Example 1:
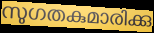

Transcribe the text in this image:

സുഗതകുമാരിക്കു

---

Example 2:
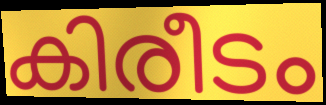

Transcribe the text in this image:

കിരീടം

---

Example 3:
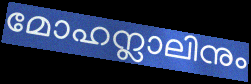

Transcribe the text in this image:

മോഹന്ലാലിനും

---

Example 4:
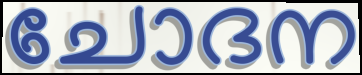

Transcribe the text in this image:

ചോദന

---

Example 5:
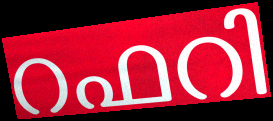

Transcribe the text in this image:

റഫറി